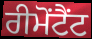
ਰੀਮੋਂਟੈਂਟ